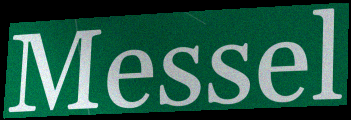
Messel